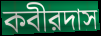
কবীরদাস